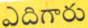
ఎదిగారు